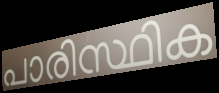
പാരിസ്ഥിക